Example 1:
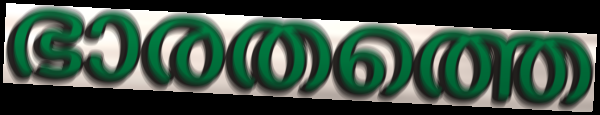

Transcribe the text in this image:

ഭാരതത്തെ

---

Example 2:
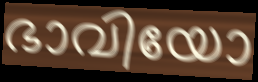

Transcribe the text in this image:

ഭാവിയോ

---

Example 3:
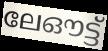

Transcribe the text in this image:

ലേഔട്ട്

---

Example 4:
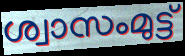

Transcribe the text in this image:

ശ്വാസംമുട്ട്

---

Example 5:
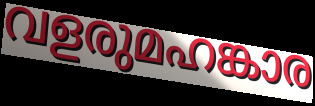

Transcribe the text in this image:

വളരുമഹങ്കാര